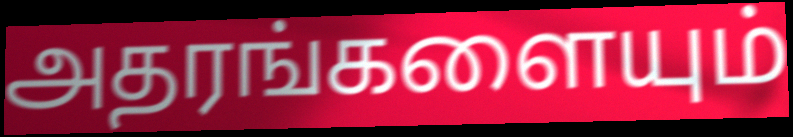
அதரங்களையும்